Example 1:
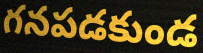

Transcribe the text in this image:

గనపడకుండ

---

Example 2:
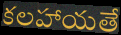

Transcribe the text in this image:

కలహాయతే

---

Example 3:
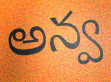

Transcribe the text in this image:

అన్వ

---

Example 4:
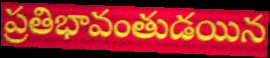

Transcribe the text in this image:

ప్రతిభావంతుడయిన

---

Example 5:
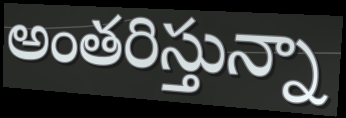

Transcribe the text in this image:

అంతరిస్తున్నా